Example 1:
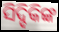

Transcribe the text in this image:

ସିଦ୍ଦିକିଙ୍କ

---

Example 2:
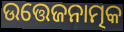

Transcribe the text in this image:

ଉତ୍ତେଜନାତ୍ମକ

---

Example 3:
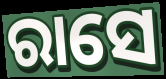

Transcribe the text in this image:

ରାସେ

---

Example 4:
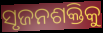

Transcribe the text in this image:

ସୃଜନଶକ୍ତିକୁ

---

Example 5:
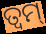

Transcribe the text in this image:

ତ୍ଵମ୍